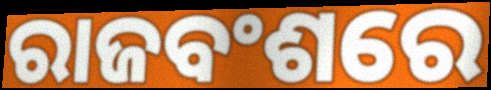
ରାଜବଂଶରେ